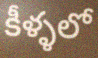
కీళ్ళలో